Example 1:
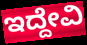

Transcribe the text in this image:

ಇದ್ದೇವಿ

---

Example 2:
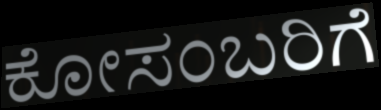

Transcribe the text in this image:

ಕೋಸಂಬರಿಗೆ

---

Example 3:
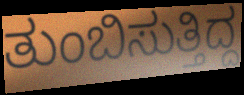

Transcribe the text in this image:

ತುಂಬಿಸುತ್ತಿದ್ದ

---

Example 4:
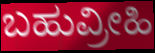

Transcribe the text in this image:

ಬಹುವ್ರೀಹಿ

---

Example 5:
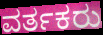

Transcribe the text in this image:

ವರ್ತಕರು